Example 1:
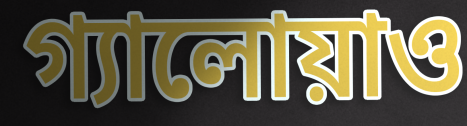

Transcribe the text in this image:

গ্যালোয়াও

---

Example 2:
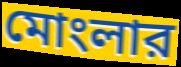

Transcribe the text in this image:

মোংলার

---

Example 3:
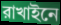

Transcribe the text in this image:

রাখাইনে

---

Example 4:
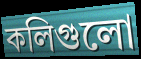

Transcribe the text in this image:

কলিগুলো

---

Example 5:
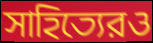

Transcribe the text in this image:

সাহিত্যেরও